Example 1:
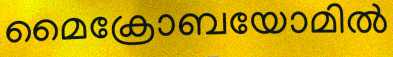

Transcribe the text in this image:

മൈക്രോബയോമിൽ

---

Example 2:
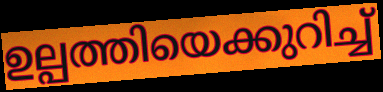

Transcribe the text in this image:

ഉല്പത്തിയെക്കുറിച്ച്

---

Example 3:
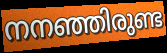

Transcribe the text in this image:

നനഞ്ഞിരുണ്ട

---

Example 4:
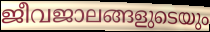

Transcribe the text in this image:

ജീവജാലങ്ങളുടെയും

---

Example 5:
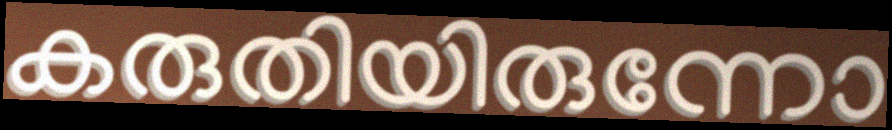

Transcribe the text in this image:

കരുതിയിരുന്നോ